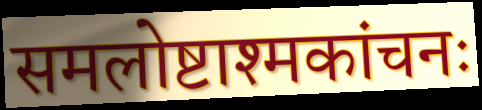
समलोष्टाश्मकांचनः